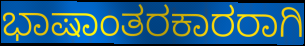
ಭಾಷಾಂತರಕಾರರಾಗಿ